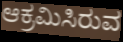
ಆಕ್ರಮಿಸಿರುವ